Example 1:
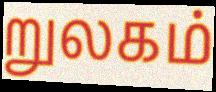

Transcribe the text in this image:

றுலகம்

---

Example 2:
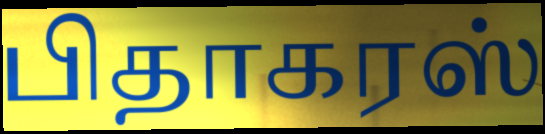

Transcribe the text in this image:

பிதாகரஸ்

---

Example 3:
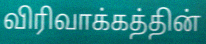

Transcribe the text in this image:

விரிவாக்கத்தின்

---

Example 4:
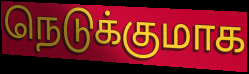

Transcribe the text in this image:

நெடுக்குமாக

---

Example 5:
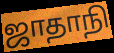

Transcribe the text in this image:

ஜாதாநி